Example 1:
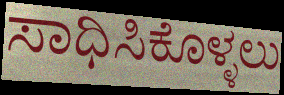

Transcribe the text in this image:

ಸಾಧಿಸಿಕೊಳ್ಳಲು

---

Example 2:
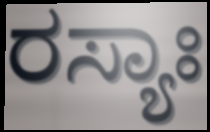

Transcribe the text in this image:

ರಸ್ಯಾಃ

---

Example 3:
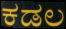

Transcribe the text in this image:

ಕಡಲ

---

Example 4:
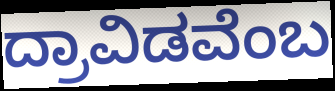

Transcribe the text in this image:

ದ್ರಾವಿಡವೆಂಬ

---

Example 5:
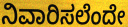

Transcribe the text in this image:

ನಿವಾರಿಸಲೆಂದೇ